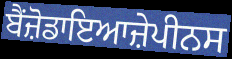
ਬੈਂਜ਼ੋਡਾਇਆਜ਼ੇਪੀਨਸ